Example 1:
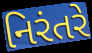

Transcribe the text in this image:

નિરંતરે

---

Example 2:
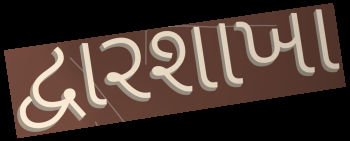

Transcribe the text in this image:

દ્વારશાખા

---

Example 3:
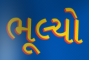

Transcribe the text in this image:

ભૂલ્‍યો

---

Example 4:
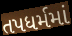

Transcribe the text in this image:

તપધર્મમાં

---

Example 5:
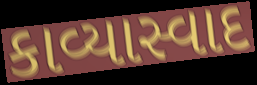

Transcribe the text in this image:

કાવ્યાસ્વાદ